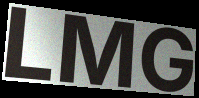
LMG